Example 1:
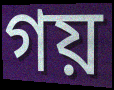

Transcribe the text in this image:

গয়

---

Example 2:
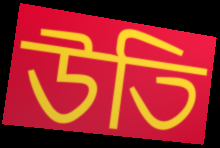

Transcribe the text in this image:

উতি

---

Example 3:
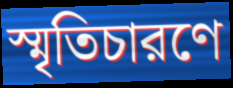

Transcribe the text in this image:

স্মৃতিচারণে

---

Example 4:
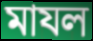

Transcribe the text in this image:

মাযল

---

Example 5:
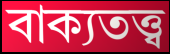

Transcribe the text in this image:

বাক্যতত্ত্ব